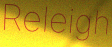
Releigh